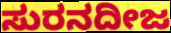
ಸುರನದೀಜ